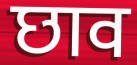
छाव